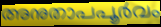
അനുതാപപൂർവം